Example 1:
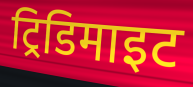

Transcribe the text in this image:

ट्रिडिमाइट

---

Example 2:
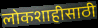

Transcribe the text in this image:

लोकशाहीसाठी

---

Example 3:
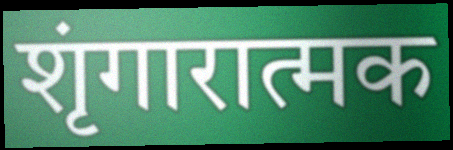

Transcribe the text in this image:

शृंगारात्मक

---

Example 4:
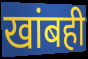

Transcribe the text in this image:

खांबही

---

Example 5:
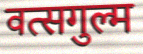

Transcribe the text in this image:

वत्सगुल्म